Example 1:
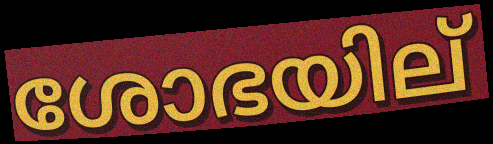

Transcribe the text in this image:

ശോഭയില്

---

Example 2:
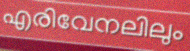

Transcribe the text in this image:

എരിവേനലിലും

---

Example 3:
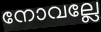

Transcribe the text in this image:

നോവല്ലേ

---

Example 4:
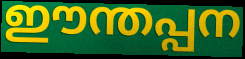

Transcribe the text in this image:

ഈന്തപ്പന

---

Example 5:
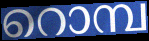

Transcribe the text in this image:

റൊമ്പ